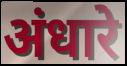
अंधारे